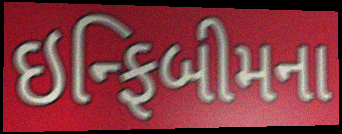
ઇન્ફિબીમના